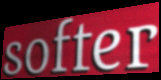
softer